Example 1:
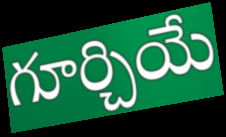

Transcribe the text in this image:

గూర్చియే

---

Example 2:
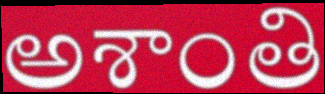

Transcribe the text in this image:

అశాంతి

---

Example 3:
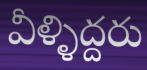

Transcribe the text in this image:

వీళ్ళిద్దరు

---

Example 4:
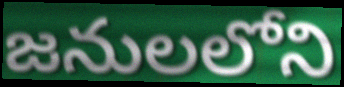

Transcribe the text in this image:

జనులలోని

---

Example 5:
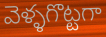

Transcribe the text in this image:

వెళ్ళగొట్టగా